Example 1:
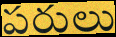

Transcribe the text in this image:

పరులు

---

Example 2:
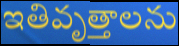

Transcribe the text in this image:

ఇతివృత్తాలను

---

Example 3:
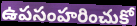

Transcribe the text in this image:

ఉపసంహరించుకో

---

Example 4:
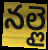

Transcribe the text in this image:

నల్లై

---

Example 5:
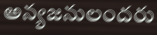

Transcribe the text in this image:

అన్యజనులందరు